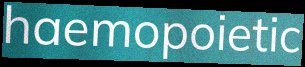
haemopoietic